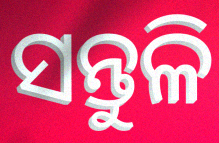
ସନ୍ତୁଳି